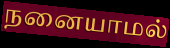
நனையாமல்